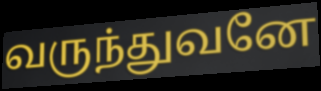
வருந்துவனே